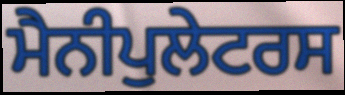
ਮੈਨੀਪੁਲੇਟਰਸ